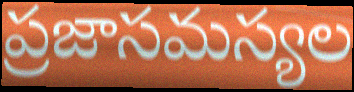
ప్రజాసమస్యల